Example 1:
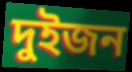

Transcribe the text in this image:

দুইজন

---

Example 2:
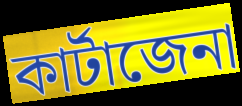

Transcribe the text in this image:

কাৰ্টাজেনা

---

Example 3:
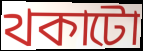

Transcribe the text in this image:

থকাটো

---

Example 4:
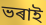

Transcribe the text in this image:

ভৰাই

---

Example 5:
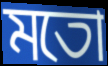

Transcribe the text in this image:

মতো